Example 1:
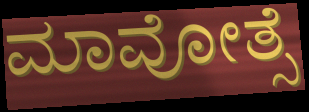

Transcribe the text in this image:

ಮಾವೋತ್ಸೆ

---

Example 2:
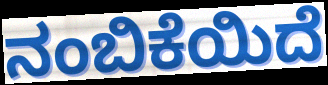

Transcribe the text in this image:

ನಂಬಿಕೆಯಿದೆ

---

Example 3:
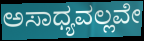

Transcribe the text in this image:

ಅಸಾಧ್ಯವಲ್ಲವೇ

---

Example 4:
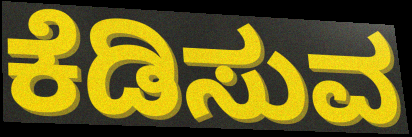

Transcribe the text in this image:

ಕೆಡಿಸುವ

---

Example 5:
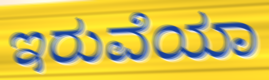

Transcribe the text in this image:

ಇರುವೆಯಾ